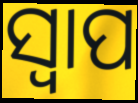
ସ୍ବାପ